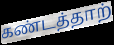
கண்டத்தாற்